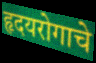
हृदयरोगाचे